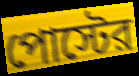
পোস্টের